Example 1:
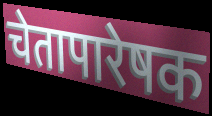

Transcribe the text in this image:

चेतापारेषक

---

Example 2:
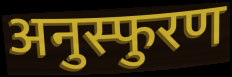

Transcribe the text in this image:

अनुस्फुरण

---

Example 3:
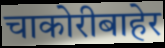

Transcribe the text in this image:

चाकोरीबाहेर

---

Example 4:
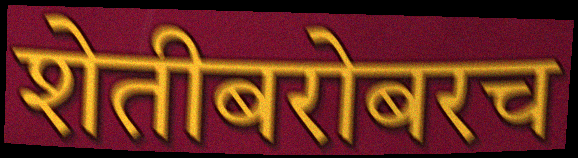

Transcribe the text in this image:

शेतीबरोबरच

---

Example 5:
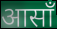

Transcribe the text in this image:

आसाँ